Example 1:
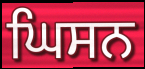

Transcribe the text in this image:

ਘਿਸਨ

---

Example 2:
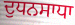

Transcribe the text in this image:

ਦੁਧਨਸਾਧਾ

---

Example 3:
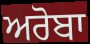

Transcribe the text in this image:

ਅਰੋਬਾ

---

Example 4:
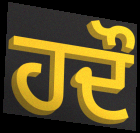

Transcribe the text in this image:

ਹਦੌ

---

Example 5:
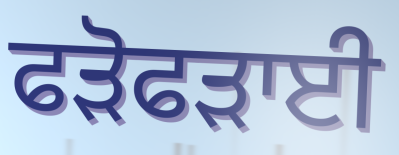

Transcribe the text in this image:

ਫੜੋਫੜਾਈ